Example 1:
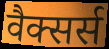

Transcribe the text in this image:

वैक्सर्स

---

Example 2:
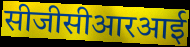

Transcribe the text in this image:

सीजीसीआरआई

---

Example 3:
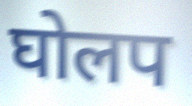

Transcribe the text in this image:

घोलप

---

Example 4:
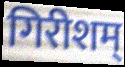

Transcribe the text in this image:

गिरीशम्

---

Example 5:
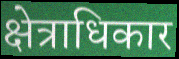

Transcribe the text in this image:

क्षेत्राधिकार